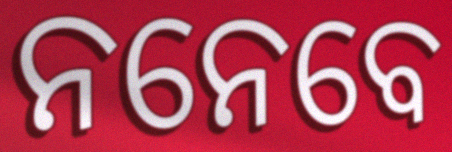
ନନେବେ